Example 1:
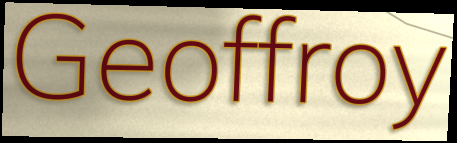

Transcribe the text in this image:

Geoffroy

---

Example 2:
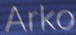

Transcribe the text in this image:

Arko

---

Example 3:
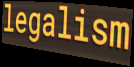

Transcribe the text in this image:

legalism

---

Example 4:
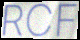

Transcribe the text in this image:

RCF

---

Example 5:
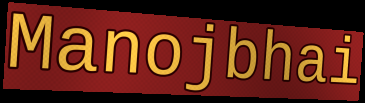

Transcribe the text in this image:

Manojbhai